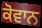
ਕੋਵਾਨ